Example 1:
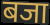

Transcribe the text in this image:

बजा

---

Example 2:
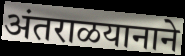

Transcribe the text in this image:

अंतराळयानाने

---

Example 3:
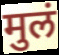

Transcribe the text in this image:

मुलं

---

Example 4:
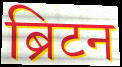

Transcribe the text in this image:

ब्रिटन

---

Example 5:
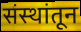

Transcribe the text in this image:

संस्थांतून